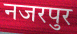
नजरपुर